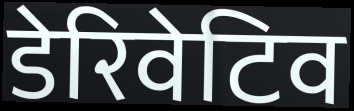
डेरिवेटिव